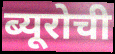
ब्यूरोची